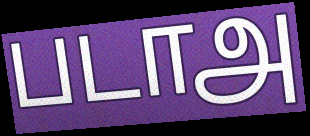
படாஅ